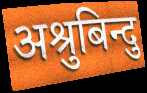
अश्रुबिन्दु